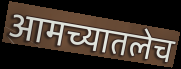
आमच्यातलेच